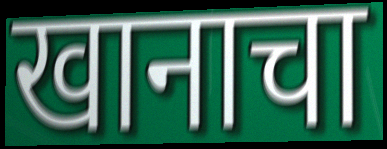
खानाचा